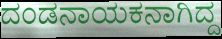
ದಂಡನಾಯಕನಾಗಿದ್ದ